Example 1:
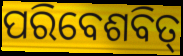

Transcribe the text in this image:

ପରିବେଶବିତ୍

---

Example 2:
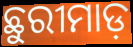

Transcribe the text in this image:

ଛୁରୀମାଡ଼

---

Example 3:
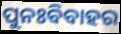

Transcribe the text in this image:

ପୁନଃବିବାହର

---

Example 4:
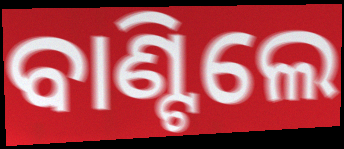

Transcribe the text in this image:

ବାଣ୍ଟିଲେ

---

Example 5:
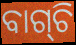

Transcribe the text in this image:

ବାଗ୍‌ଚି